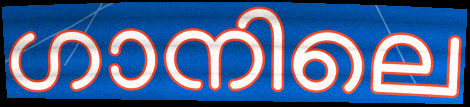
ഗാനിലെ